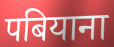
पबियाना